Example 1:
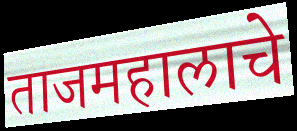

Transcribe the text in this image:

ताजमहालाचे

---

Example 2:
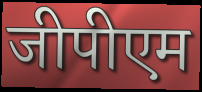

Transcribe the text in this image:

जीपीएम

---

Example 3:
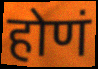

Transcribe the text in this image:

होणं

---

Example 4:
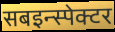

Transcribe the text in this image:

सबइन्स्पेक्टर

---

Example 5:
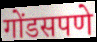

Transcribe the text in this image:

गोंडसपणे